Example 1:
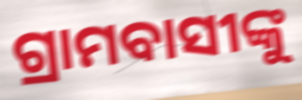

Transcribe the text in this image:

ଗ୍ରାମବାସୀଙ୍କୁ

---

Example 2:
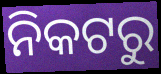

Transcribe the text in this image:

ନିକଟରୁ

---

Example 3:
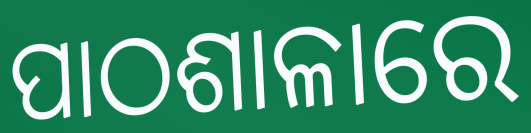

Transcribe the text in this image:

ପାଠଶାଳାରେ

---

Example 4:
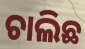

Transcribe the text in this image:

ଚାଲିଛ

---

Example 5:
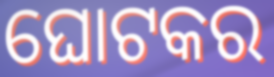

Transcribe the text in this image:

ଘୋଟକର